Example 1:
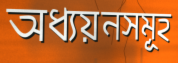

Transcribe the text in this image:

অধ্যয়নসমূহ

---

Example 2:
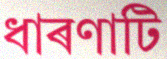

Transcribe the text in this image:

ধাৰণাটি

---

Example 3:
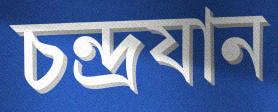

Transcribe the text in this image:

চন্দ্ৰযান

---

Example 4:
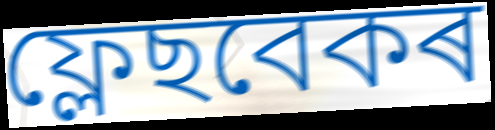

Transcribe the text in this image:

ফ্লেছবেকৰ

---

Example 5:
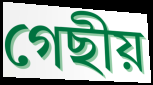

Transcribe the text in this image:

গেছীয়